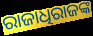
ରାଜାଧିରାଜଙ୍କ